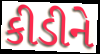
કીડીને